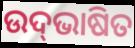
ଉଦ୍‍ଭାଷିତ